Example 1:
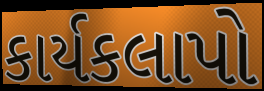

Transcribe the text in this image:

કાર્યકલાપો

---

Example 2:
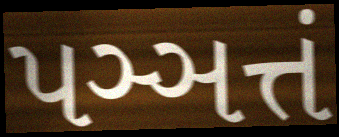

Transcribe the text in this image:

પઞ્ઞત્તં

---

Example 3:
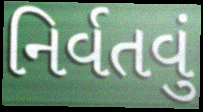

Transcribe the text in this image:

નિર્વતવું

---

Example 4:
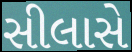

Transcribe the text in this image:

સીલાસે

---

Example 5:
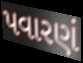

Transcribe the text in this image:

પવારણં